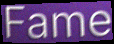
Fame